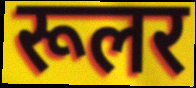
रूलर